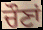
ਚੌਣਾਂ